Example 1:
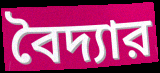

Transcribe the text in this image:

বৈদ্যার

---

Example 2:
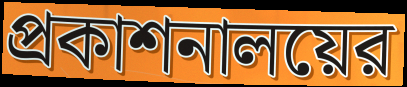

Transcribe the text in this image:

প্রকাশনালয়ের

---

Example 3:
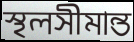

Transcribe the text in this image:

স্থলসীমান্ত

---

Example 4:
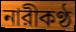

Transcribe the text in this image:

নারীকণ্ঠ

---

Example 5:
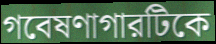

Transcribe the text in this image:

গবেষণাগারটিকে